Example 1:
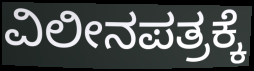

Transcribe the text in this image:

ವಿಲೀನಪತ್ರಕ್ಕೆ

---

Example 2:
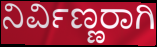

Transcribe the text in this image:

ನಿರ್ವಿಣ್ಣರಾಗಿ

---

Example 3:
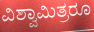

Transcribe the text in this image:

ವಿಶ್ವಾಮಿತ್ರರೂ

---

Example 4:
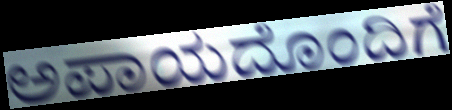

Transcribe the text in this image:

ಅಪಾಯದೊಂದಿಗೆ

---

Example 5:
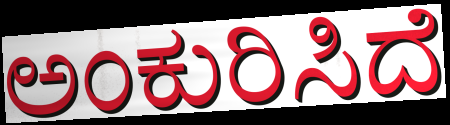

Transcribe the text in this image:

ಅಂಕುರಿಸಿದೆ